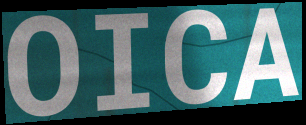
OICA